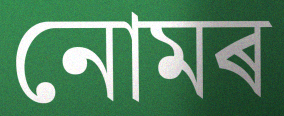
নোমৰ